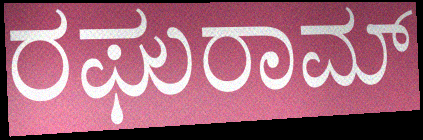
ರಘುರಾಮ್